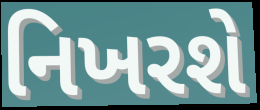
નિખરશે